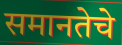
समानतेचे